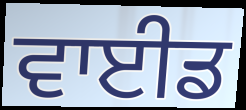
ਵਾਈਡ